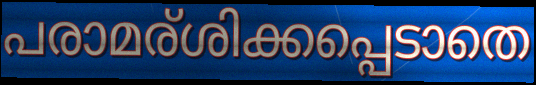
പരാമര്ശിക്കപ്പെടാതെ